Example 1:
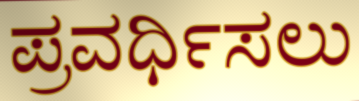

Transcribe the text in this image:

ಪ್ರವರ್ಧಿಸಲು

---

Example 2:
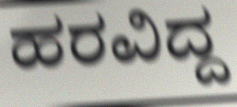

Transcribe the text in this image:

ಹರವಿದ್ದ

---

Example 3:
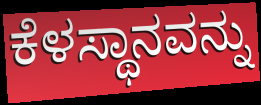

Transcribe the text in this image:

ಕೆಳಸ್ಥಾನವನ್ನು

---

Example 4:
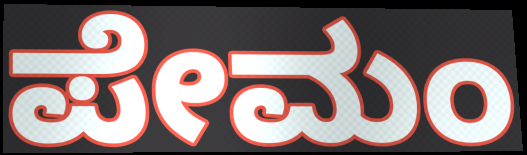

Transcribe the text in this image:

ಪೇಮಂ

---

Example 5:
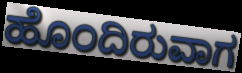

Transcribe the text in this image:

ಹೊಂದಿರುವಾಗ